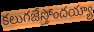
కలుగజేస్తోందయ్యా